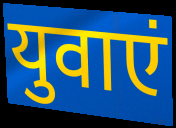
युवाएं